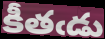
కీతఁడు